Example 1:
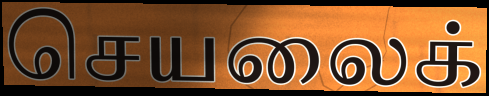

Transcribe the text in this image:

செயலைக்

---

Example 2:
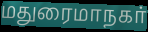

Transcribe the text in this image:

மதுரைமாநகர்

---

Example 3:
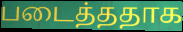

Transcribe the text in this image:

படைத்ததாக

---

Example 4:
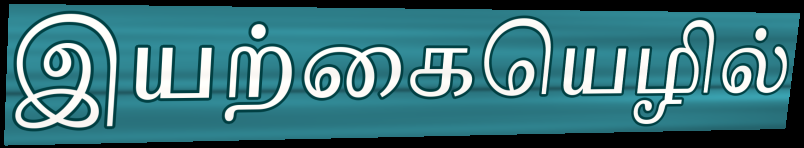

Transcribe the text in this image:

இயற்கையெழில்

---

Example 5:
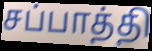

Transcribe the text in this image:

சப்பாத்தி